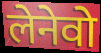
लेनेवो